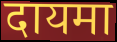
दायमा